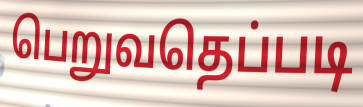
பெறுவதெப்படி